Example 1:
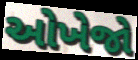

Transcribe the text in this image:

ઓખેજો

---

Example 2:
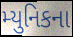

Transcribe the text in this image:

મ્યુનિકના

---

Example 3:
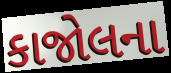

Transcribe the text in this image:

કાજોલના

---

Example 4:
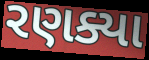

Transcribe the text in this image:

રણક્યા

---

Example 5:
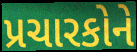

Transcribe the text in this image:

પ્રચારકોને